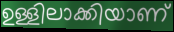
ഉള്ളിലാക്കിയാണ്